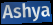
Ashya